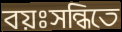
বয়ঃসন্ধিতে